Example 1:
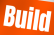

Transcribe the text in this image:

Build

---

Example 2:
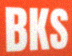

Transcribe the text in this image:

BKS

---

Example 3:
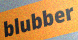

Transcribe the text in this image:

blubber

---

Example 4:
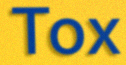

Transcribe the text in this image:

Tox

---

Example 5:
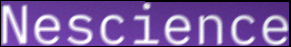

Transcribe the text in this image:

Nescience